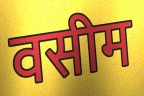
वसीम